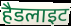
हैडलाइट